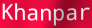
Khanpar